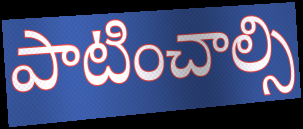
పాటించాల్సి